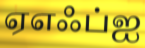
ஏஎஃப்ஐ